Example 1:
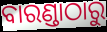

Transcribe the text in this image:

ବାରଣ୍ଡାଠାରୁ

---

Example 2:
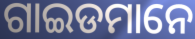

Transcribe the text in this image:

ଗାଇଡମାନେ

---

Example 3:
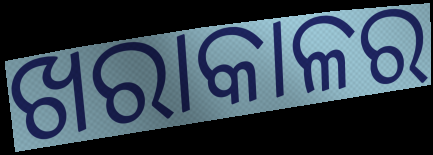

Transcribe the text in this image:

ଖରାକାଳର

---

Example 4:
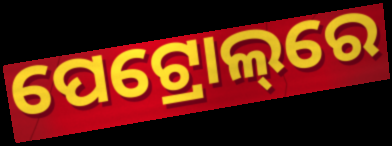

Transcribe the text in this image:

ପେଟ୍ରୋଲ୍‌ରେ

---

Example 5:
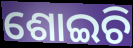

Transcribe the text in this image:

ଶୋଇଚି